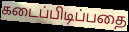
கடைப்பிடிப்பதை